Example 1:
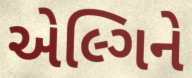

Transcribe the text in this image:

એલ્ગિને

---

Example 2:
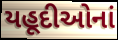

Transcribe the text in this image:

યહૂદીઓનાં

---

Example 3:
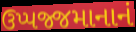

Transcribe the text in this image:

ઉપ્પજ્જમાનાનં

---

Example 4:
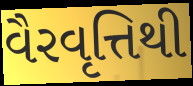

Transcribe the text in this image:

વૈરવૃત્તિથી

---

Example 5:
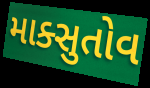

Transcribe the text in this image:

માક્સુતોવ